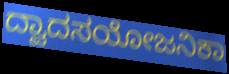
ದ್ವಾದಸಯೋಜನಿಕಾ